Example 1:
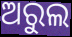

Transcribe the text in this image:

ଅରୁଲ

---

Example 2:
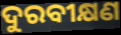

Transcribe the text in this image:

ଦୁରବୀକ୍ଷଣ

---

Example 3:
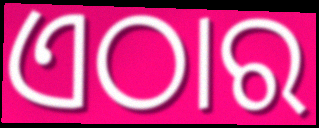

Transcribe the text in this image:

ଏଠାର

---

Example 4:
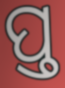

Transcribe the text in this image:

ପ୍ତ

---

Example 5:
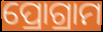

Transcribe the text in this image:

ପ୍ରୋଗ୍ରାମ